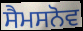
ਸੈਮਸਨੋਵ